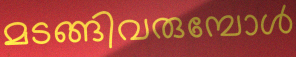
മടങ്ങിവരുമ്പോൾ